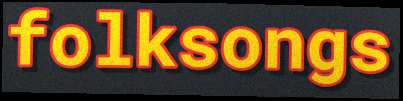
folksongs